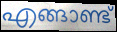
എങ്ങാണ്ട്